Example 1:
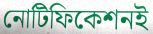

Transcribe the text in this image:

নোটিফিকেশনই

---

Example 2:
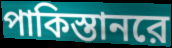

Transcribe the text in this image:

পাকিস্তানরে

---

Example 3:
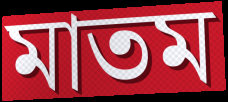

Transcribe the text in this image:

মাতম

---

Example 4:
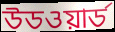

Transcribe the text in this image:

উডওয়ার্ড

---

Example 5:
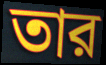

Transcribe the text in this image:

তার